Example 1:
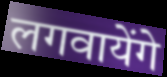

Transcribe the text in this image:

लगवायेंगे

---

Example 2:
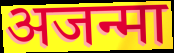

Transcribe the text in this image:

अजन्‍मा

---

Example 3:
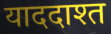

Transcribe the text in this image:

याददाश्त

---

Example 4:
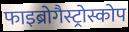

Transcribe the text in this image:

फाइब्रोगैस्ट्रोस्कोप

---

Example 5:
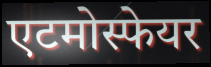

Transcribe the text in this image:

एटमोस्फेयर